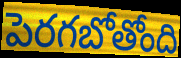
పెరగబోతోంది